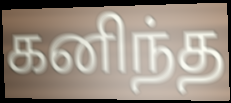
கனிந்த